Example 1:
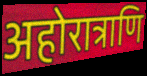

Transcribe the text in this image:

अहोरात्राणि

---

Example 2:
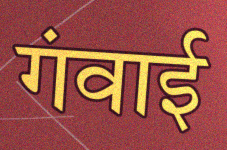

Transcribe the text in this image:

गंवाई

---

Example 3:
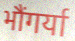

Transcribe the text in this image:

भौंगर्या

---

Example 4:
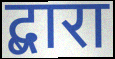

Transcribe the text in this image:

द्बारा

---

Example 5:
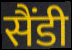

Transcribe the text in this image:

सैंडी